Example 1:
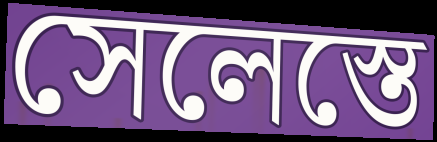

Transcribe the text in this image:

সেলেস্তে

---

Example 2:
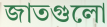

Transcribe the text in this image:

জাতগুলো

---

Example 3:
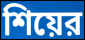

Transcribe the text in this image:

শিয়ের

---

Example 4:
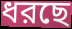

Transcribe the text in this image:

ধরছে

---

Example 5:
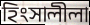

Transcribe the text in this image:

হিংসালীলা